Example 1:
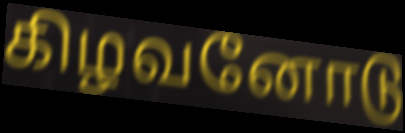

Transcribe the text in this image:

கிழவனோடு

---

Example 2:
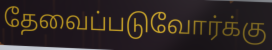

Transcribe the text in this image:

தேவைப்படுவோர்க்கு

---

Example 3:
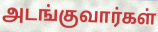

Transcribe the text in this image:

அடங்குவார்கள்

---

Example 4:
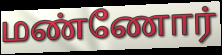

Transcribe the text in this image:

மண்ணோர்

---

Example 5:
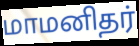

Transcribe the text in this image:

மாமனிதர்